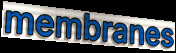
membranes